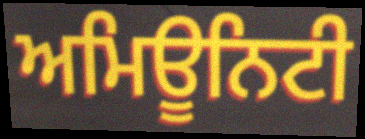
ਅਮਿਊਨਿਟੀ